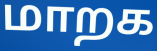
மாறக